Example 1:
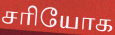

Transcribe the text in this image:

சரியோக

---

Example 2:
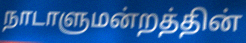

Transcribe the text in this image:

நாடாளுமன்றத்தின்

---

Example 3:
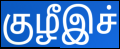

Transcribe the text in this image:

குழீஇச்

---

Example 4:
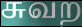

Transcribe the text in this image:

சுவற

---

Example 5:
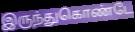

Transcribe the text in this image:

இருந்துகொண்டே